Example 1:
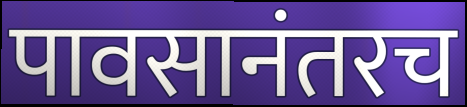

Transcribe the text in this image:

पावसानंतरच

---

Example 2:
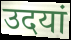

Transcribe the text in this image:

उदयां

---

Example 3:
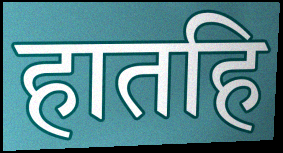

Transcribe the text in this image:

हातहि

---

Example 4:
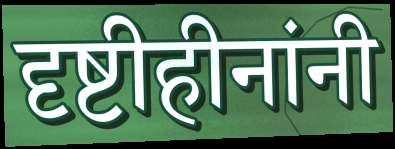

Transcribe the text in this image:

दृष्टीहीनांनी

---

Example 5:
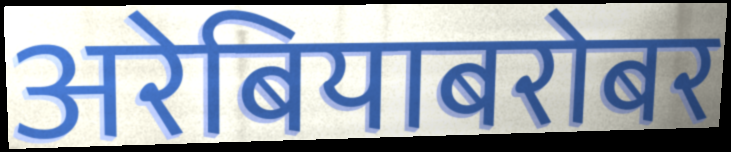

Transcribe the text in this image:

अरेबियाबरोबर